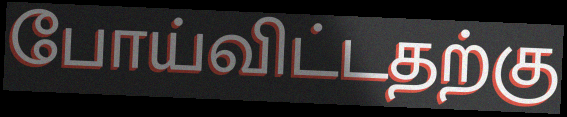
போய்விட்டதற்கு